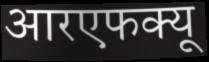
आरएफक्यू